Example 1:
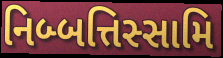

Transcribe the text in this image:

નિબ્બત્તિસ્સામિ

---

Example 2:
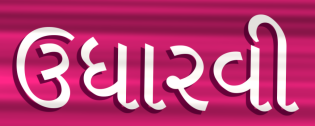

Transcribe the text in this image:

ઉધારવી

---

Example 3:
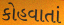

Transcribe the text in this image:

કોહવાતાં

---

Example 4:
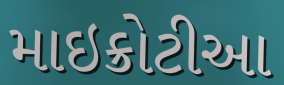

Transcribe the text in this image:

માઇક્રોટીઆ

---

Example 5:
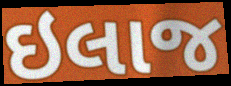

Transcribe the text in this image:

ઇલાજ